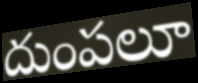
దుంపలూ